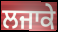
ਲਜਾਕੇ